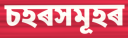
চহৰসমূহৰ